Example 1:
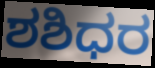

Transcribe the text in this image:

ಶಶಿಧರ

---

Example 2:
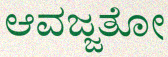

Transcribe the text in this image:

ಆವಜ್ಜತೋ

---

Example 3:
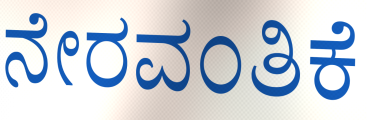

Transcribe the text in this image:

ನೇರವಂತಿಕೆ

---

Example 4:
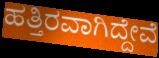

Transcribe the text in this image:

ಹತ್ತಿರವಾಗಿದ್ದೇವೆ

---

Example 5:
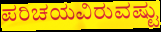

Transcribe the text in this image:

ಪರಿಚಯವಿರುವಷ್ಟು